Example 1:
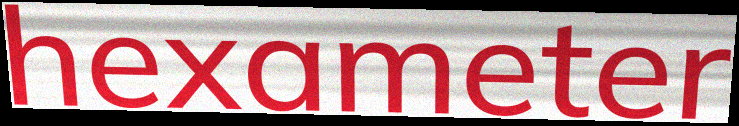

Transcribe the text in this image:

hexameter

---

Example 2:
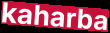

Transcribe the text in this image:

kaharba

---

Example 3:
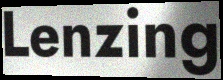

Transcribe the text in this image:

Lenzing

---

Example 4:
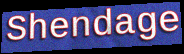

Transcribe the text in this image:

Shendage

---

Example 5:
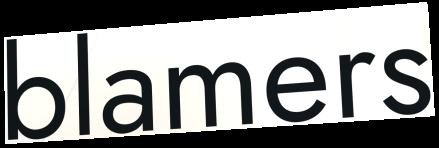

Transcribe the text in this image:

blamers